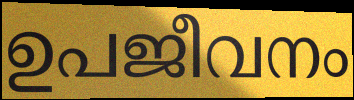
ഉപജീവനം